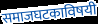
समाजघटकाविषयी